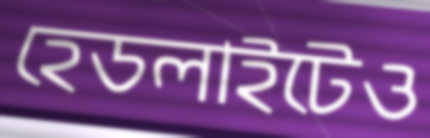
হেডলাইটেও